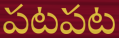
పటపట